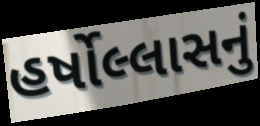
હર્ષોલ્લાસનું